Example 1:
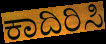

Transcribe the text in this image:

ಕಾದಿರಿಸಿ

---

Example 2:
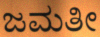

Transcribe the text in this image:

ಜಮತೀ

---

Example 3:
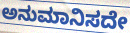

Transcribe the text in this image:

ಅನುಮಾನಿಸದೇ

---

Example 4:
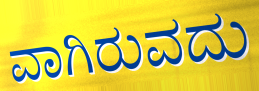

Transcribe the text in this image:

ವಾಗಿರುವದು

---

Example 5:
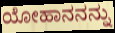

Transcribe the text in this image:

ಯೋಹಾನನನ್ನು